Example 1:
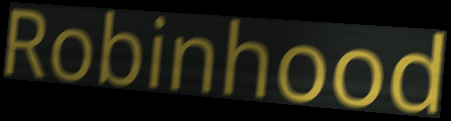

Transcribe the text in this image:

Robinhood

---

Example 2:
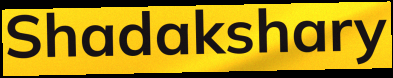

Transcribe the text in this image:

Shadakshary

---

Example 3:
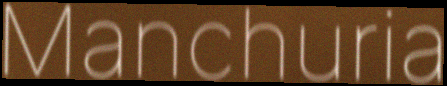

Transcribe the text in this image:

Manchuria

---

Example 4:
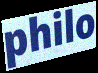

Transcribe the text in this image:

philo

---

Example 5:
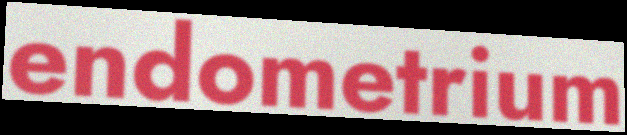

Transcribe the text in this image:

endometrium